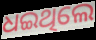
ଧଇଥିଲେ